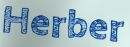
Herber